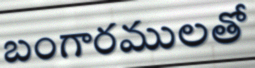
బంగారములతో